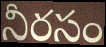
నీరసం